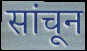
सांचून